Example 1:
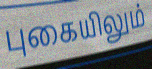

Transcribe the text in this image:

புகையிலும்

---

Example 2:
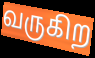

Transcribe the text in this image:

வருகிற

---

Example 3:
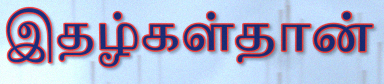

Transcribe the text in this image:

இதழ்கள்தான்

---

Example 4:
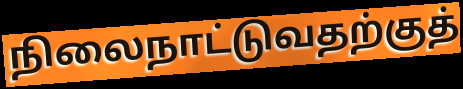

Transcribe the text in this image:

நிலைநாட்டுவதற்குத்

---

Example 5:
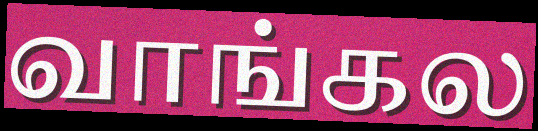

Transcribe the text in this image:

வாங்கல